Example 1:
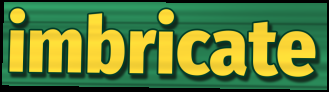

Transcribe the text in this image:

imbricate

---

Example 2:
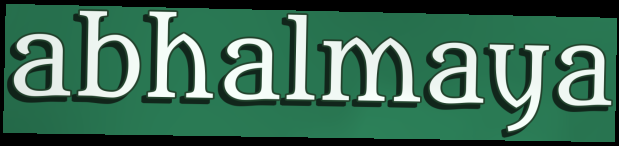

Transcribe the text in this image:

abhalmaya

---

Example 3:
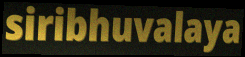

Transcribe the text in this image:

siribhuvalaya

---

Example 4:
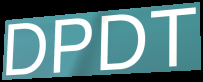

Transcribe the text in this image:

DPDT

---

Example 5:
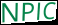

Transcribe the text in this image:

NPIC